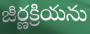
జీర్ణక్రియను